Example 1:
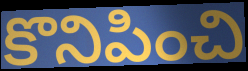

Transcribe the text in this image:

కొనిపించి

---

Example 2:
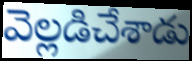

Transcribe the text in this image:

వెల్లడిచేశాడు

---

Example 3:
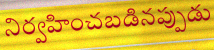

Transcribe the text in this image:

నిర్వహించబడినప్పుడు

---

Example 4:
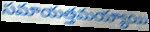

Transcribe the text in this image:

సమాయత్తమయ్యాయి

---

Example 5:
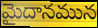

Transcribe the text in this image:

మైదానమున